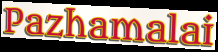
Pazhamalai